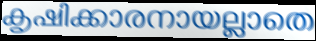
കൃഷിക്കാരനായല്ലാതെ